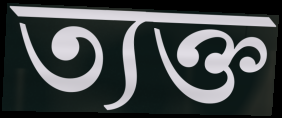
ত্যক্ত